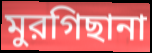
মুরগিছানা